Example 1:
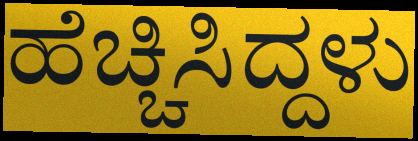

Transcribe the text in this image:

ಹೆಚ್ಚಿಸಿದ್ದಳು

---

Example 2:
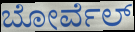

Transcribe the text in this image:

ಬೋರ್ವೆಲ್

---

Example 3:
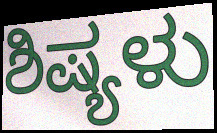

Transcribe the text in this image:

ಶಿಷ್ಯಳು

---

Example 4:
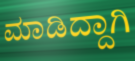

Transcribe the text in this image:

ಮಾಡಿದ್ದಾಗಿ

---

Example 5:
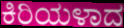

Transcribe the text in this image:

ಕಿರಿಯಳಾದ